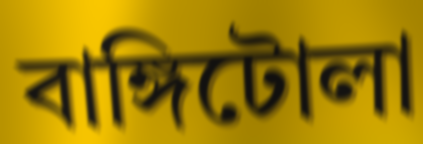
বাঙ্গিটোলা